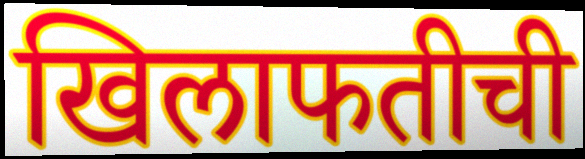
खिलाफतीची